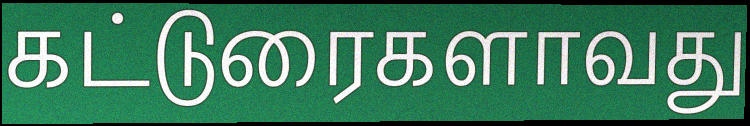
கட்டுரைகளாவது